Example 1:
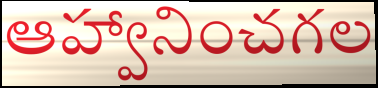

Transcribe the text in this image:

ఆహ్వానించగల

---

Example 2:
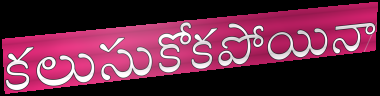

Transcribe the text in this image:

కలుసుకోకపోయినా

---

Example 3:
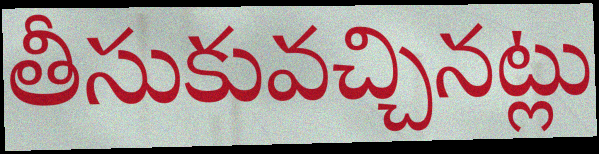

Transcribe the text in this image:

తీసుకువచ్చినట్లు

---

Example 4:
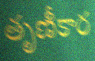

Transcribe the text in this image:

తృణీకార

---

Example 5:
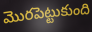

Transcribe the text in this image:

మొరపెట్టుకుంది